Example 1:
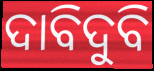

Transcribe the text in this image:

ଦାବିଦୁବି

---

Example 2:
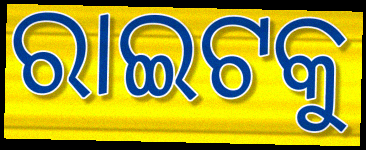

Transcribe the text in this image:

ରାଇଟକୁ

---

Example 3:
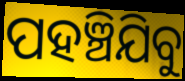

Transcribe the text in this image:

ପହଞ୍ଚିଯିବୁ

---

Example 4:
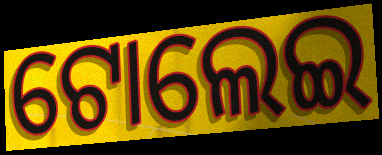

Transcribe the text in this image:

ଟୋଲେଇ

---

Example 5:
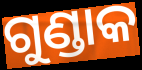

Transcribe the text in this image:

ଗୁଣ୍ଡାକ